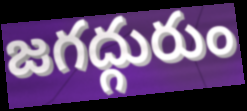
జగద్గురుం